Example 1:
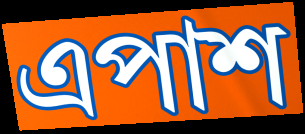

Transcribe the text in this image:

এপাশ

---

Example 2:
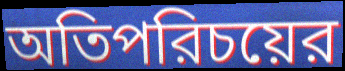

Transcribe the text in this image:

অতিপরিচয়ের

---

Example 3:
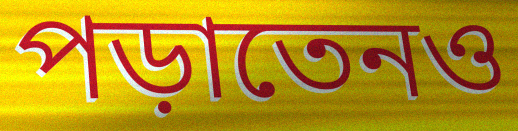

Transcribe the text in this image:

পড়াতেনও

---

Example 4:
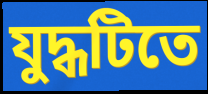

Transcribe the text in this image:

যুদ্ধটিতে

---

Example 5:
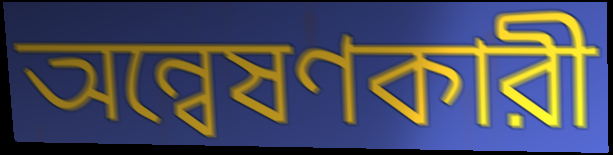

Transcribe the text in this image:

অন্বেষণকারী